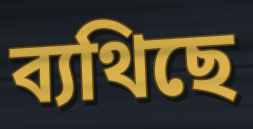
ব্যথিছে